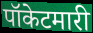
पॉकेटमारी